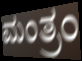
ಮಂತ್ರಂ